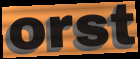
orst